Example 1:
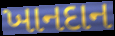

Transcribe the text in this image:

ખાનદાન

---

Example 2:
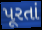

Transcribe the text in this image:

પૂરતાં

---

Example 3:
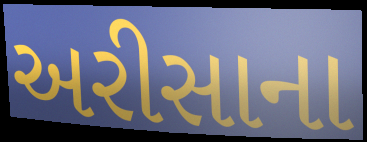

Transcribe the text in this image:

અરીસાના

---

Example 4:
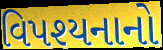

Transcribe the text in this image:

વિપશ્યનાનો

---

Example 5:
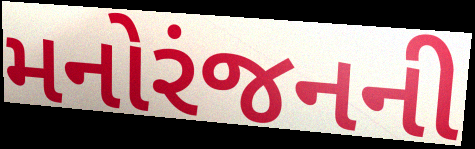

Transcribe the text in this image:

મનોરંજનની